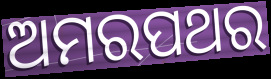
ଅମରପଥର